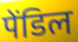
पेंडिल